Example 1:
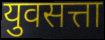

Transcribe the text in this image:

युवसत्ता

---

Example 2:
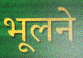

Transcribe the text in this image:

भूलने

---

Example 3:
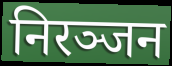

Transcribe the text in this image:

निरञ्जन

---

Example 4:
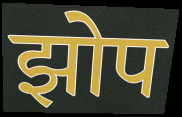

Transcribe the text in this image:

झोप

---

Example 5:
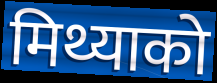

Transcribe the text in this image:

मिथ्याको